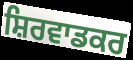
ਸ਼ਿਰਵਾਡਕਰ